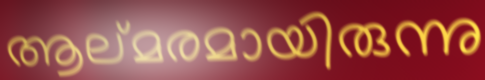
ആല്മരമായിരുന്നു